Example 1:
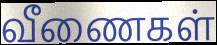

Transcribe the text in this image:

வீணைகள்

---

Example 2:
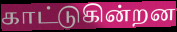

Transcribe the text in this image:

காட்டுகின்றன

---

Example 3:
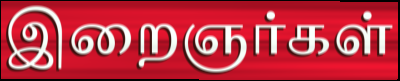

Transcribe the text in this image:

இறைஞர்கள்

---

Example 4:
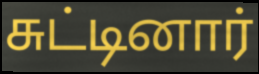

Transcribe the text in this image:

சுட்டினார்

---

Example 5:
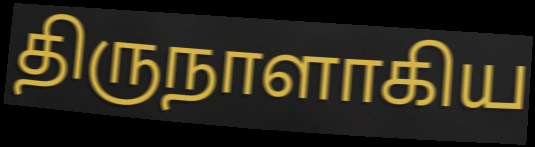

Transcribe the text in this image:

திருநாளாகிய